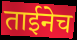
ताईनेच